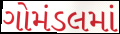
ગોમંડલમાં